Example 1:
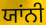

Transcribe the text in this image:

ਯਾਂਨੀ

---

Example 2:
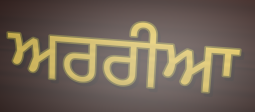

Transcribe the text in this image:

ਅਰਰੀਆ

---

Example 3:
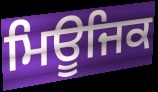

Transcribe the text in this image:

ਮਿਊਜਿਕ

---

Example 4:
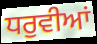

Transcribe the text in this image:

ਧਰੁਵੀਆਂ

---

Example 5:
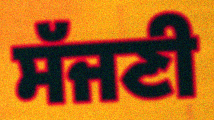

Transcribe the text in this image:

ਸੱਜਣੀ